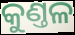
କୁଣ୍ତଳ